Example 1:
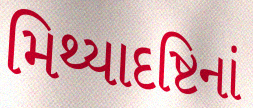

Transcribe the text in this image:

મિથ્યાદષ્ટિનાં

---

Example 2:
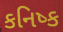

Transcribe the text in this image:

કનિષ્ક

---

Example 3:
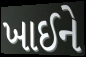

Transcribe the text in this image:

ખાઈને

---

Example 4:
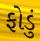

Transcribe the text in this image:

ફોડું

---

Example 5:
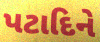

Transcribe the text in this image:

પટાદિને